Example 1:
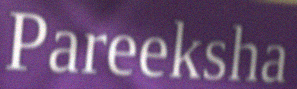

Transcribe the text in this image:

Pareeksha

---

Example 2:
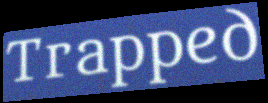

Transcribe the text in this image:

Trapped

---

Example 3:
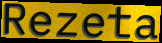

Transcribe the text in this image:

Rezeta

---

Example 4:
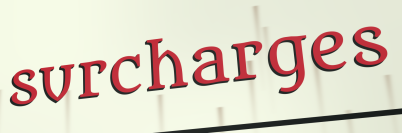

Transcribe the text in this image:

surcharges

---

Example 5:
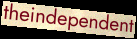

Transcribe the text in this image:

theindependent